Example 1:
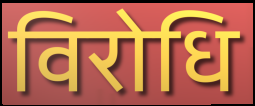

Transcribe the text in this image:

विरोधि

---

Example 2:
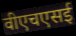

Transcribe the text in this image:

वीएचएसई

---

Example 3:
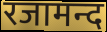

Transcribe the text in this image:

रजामन्द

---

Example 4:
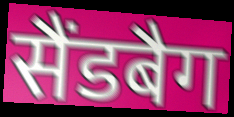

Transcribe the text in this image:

सैंडबैग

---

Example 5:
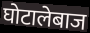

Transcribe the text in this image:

घोटालेबाज